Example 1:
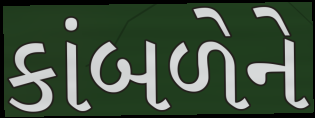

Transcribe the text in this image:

કાંબળેને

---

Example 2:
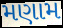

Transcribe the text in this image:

મણામ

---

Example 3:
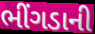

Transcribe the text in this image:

ભીંગડાની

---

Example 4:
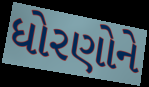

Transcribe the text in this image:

ધોરણોને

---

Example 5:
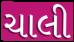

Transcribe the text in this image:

ચાલી